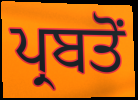
ਪ੍ਰਬਤੋਂ